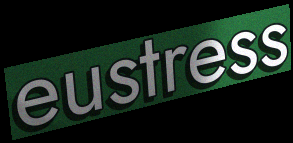
eustress